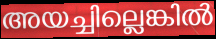
അയച്ചില്ലെങ്കിൽ